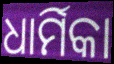
ଧାର୍ମିକା